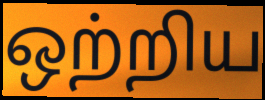
ஒற்றிய